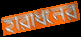
হারাধনের